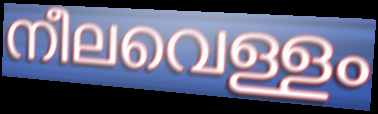
നീലവെള്ളം